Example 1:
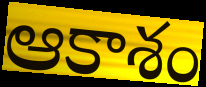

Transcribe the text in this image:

ఆకాశం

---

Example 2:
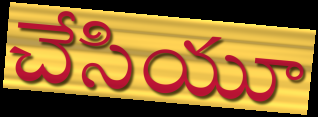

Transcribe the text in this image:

చేసియూ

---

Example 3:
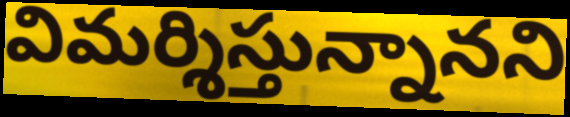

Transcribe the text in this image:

విమర్శిస్తున్నానని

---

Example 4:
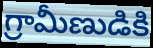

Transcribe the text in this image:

గ్రామీణుడికి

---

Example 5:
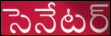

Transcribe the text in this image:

సెనేటర్